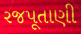
રજપૂતાણી